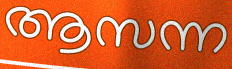
ആസന്ന